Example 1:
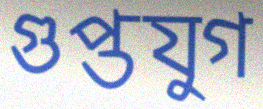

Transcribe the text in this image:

গুপ্তযুগ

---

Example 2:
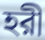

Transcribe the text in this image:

হরী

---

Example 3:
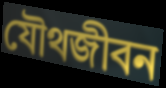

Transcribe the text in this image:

যৌথজীবন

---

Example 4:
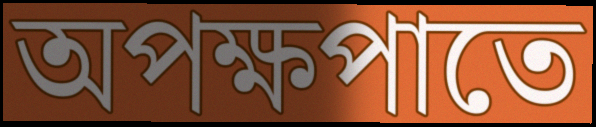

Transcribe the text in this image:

অপক্ষপাতে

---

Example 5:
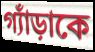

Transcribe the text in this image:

গ্যাঁড়াকে